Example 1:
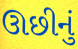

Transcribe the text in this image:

ઊછીનું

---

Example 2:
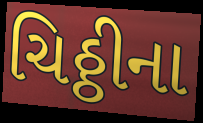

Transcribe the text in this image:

ચિઠ્ઠીના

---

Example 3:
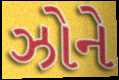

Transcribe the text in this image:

ઝોને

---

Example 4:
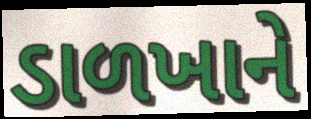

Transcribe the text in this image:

ડાળખાને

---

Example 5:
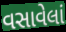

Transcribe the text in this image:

વસાવેલાં